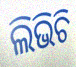
ଲିଭିଚି